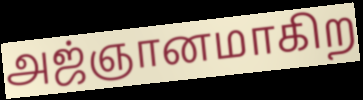
அஜ்ஞானமாகிற